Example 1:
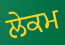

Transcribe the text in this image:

ਲੇਕਮ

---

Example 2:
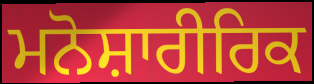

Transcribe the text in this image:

ਮਨੋਸ਼ਾਰੀਰਿਕ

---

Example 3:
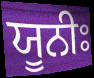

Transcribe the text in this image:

ਯੂਨੀਃ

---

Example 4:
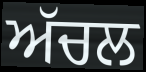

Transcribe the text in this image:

ਅੱਚਲ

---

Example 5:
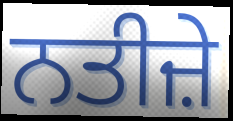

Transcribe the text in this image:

ਨਤੀਜ਼ੇ